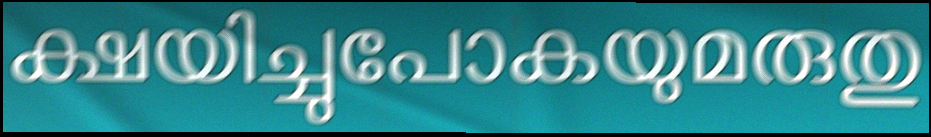
ക്ഷയിച്ചുപോകയുമരുതു